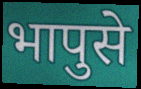
भापुसे